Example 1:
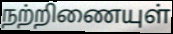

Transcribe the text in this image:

நற்றிணையுள்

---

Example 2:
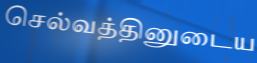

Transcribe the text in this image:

செல்வத்தினுடைய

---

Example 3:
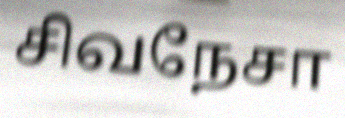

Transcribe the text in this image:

சிவநேசா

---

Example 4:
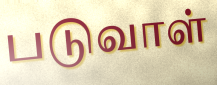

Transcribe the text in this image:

படுவாள்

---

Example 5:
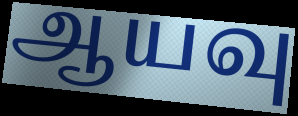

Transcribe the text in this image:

ஆயவு